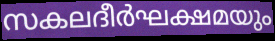
സകലദീർഘക്ഷമയും